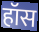
हॉस